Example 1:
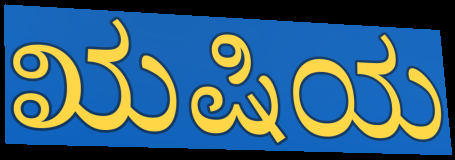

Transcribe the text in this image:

ಋಷಿಯ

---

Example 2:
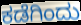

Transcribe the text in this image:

ಕಡೆಗಿಂದು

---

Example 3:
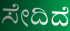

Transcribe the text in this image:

ಸೇದಿದೆ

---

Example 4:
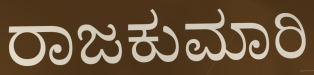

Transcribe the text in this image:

ರಾಜಕುಮಾರಿ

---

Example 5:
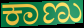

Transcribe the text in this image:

ಕಾಣು